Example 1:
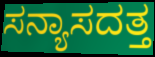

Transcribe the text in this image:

ಸನ್ಯಾಸದತ್ತ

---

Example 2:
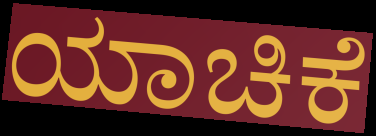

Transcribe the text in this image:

ಯಾಚಿಕೆ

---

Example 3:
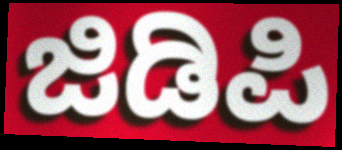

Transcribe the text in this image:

ಜಿಡಿಪಿ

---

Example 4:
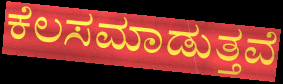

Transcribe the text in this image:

ಕೆಲಸಮಾಡುತ್ತವೆ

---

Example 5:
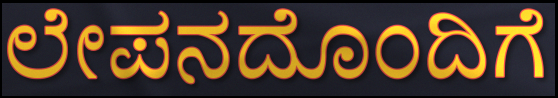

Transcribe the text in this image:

ಲೇಪನದೊಂದಿಗೆ